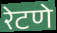
रेटणे